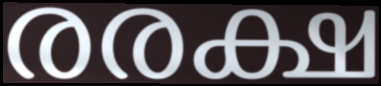
രരക്ഷ